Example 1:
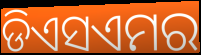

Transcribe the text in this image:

ଡିଏସଏମର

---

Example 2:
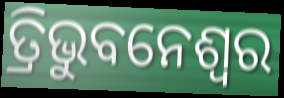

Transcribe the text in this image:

ତ୍ରିଭୁବନେଶ୍ବର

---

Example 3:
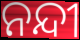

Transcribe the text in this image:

ନନ୍ଦୀ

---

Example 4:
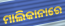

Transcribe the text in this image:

ମାଲିକାନାରେ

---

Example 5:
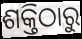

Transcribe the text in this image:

ଶକ୍ତିଠାରୁ